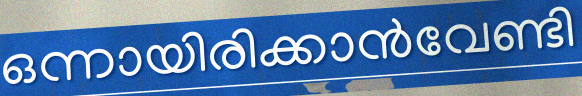
ഒന്നായിരിക്കാൻവേണ്ടി